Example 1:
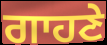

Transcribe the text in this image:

ਗਾਹਣੇ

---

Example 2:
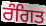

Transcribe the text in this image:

ਰੰਗਿਤ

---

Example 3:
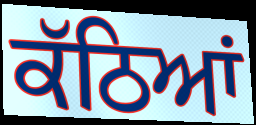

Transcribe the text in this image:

ਕੱਠਿਆਂ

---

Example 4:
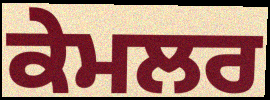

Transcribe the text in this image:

ਕੇਮਲਰ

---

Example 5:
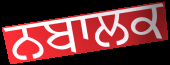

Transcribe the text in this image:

ਨਬਾਲਕ